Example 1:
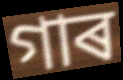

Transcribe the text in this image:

গাৰ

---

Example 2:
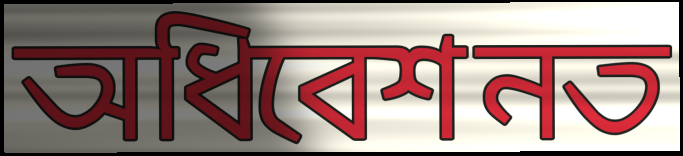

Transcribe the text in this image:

অধিবেশনত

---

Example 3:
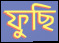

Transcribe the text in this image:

ফুছি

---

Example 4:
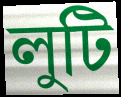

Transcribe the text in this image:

লুটি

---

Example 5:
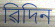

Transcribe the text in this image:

ৱিদিন